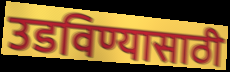
उडविण्यासाठी